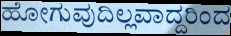
ಹೋಗುವುದಿಲ್ಲವಾದ್ದರಿಂದ